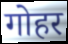
गोहर